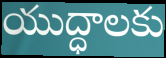
యుద్ధాలకు